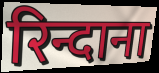
रिन्दाना